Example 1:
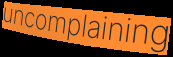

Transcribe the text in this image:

uncomplaining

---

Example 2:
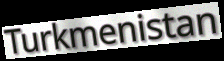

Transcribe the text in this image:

Turkmenistan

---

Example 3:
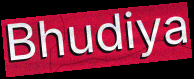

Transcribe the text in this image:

Bhudiya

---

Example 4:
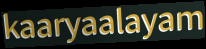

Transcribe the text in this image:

kaaryaalayam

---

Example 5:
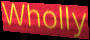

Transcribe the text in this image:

Wholly